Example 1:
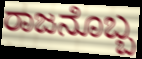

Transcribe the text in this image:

ರಾಜನೊಬ್ಬ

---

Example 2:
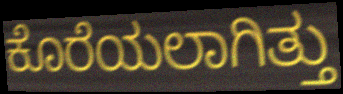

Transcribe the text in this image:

ಕೊರೆಯಲಾಗಿತ್ತು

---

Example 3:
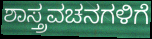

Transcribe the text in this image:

ಶಾಸ್ತ್ರವಚನಗಳಿಗೆ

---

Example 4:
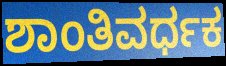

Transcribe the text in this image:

ಶಾಂತಿವರ್ಧಕ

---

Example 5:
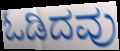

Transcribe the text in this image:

ಓಡಿದವು